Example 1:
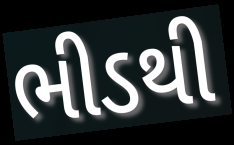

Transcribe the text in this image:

ભીડથી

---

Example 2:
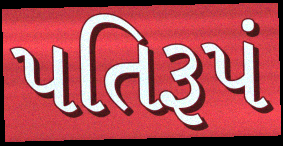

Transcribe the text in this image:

પતિરૂપં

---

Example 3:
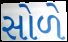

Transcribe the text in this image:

સોળે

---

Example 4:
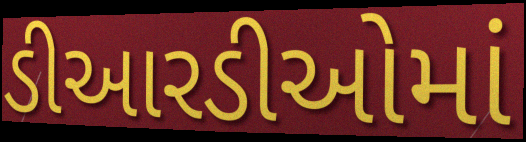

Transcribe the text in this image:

ડીઆરડીઓમાં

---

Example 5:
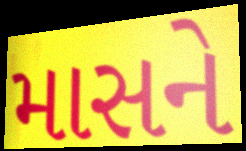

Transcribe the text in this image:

માસને